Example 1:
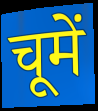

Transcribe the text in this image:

चूमें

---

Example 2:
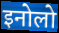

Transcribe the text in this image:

इनोलो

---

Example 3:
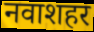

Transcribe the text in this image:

नवाशहर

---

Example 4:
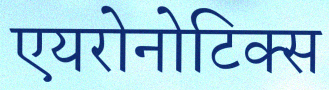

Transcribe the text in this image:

एयरोनोटिक्स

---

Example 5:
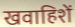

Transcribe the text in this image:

खवाहिशें